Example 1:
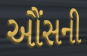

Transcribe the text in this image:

ઔંસની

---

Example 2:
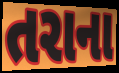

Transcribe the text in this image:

તરાના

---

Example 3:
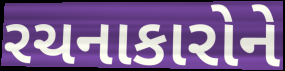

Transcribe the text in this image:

રચનાકારોને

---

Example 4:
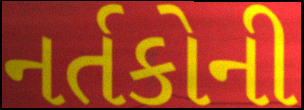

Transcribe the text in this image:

નર્તકોની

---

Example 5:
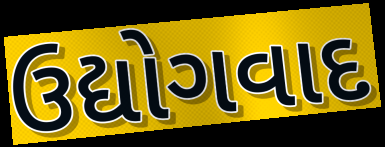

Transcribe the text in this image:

ઉદ્યોગવાદ